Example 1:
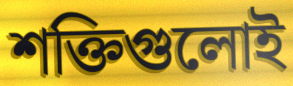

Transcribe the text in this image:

শক্তিগুলোই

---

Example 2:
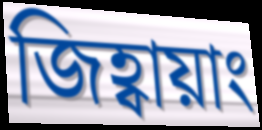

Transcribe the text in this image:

জিহ্বায়াং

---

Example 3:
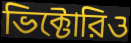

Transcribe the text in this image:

ভিক্টোরিও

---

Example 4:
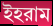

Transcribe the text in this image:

ইহরাম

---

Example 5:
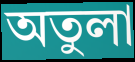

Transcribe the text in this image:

অতুলা